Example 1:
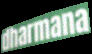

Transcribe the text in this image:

dharmana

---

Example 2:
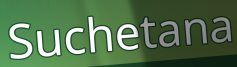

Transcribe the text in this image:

Suchetana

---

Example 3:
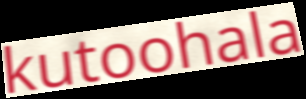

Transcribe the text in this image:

kutoohala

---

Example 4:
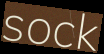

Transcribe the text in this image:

sock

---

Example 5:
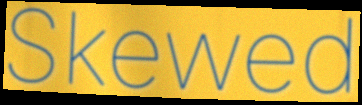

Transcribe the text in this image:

Skewed